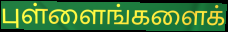
புள்ளைங்களைக்